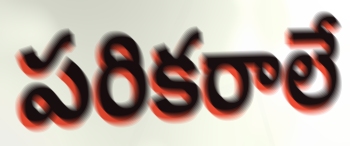
పరికరాలే